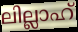
ലില്ലാഹ്